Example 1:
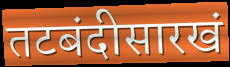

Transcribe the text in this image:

तटबंदीसारखं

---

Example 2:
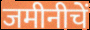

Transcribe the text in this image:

जमीनीचें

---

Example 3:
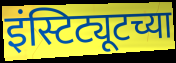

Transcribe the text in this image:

इंस्टिट्यूटच्या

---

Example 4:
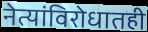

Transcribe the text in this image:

नेत्यांविरोधातही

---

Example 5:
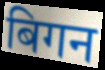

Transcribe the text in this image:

बिगन